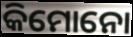
କିମୋନୋ